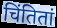
चिंतितां